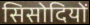
सिसोदियों